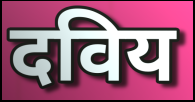
दविय